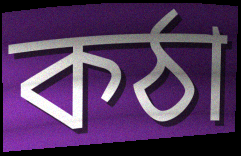
কঠা